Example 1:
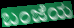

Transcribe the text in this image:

ಬಂಜೆಯ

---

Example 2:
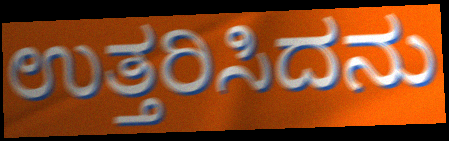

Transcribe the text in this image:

ಉತ್ತರಿಸಿದನು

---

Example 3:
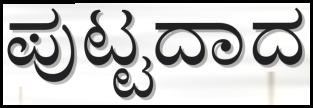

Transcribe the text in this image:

ಪುಟ್ಟದಾದ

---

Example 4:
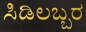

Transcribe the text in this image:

ಸಿಡಿಲಬ್ಬರ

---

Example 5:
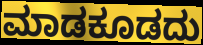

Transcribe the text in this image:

ಮಾಡಕೂಡದು